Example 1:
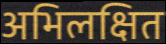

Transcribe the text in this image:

अभिलक्षित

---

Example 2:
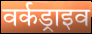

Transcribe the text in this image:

वर्कड्राइव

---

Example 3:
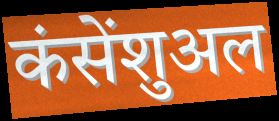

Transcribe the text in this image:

कंसेंशुअल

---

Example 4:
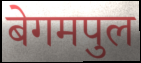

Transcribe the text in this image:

बेगमपुल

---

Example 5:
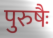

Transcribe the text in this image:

पुरुषैः